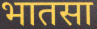
भातसा